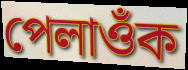
পেলাওঁক